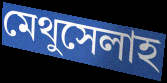
মেথুসেলাহ